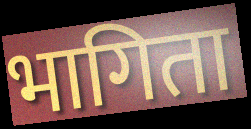
भागिता